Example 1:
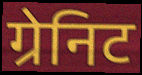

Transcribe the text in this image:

ग्रेनिट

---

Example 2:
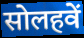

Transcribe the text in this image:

सोलहवें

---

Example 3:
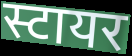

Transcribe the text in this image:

स्टायर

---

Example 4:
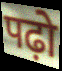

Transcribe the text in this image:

पढ़ो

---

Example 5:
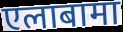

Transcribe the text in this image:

एलाबामा